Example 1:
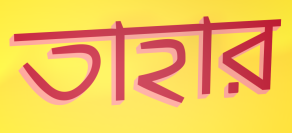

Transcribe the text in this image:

তাহার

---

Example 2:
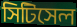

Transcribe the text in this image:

সিটিসেল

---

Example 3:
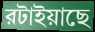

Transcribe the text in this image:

রটাইয়াছে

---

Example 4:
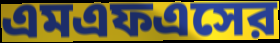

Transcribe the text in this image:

এমএফএসের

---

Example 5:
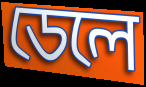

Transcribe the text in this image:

ডেলে